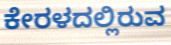
ಕೇರಳದಲ್ಲಿರುವ